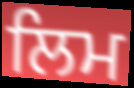
ਲਿਮ